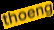
thoeng